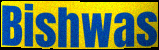
Bishwas